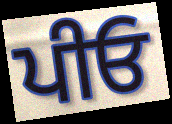
ਪੀਓ